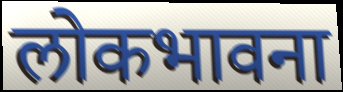
लोकभावना